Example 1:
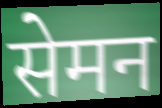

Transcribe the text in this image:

सेमन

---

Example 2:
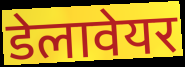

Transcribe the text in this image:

डेलावेयर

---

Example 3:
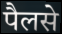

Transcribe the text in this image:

पैलसे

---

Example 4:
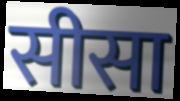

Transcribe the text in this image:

सीसा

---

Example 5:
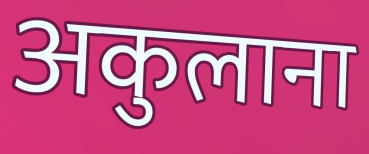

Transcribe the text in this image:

अकुलाना